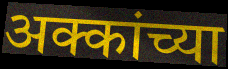
अक्कांच्या